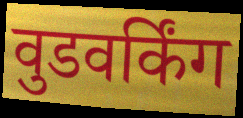
वुडवर्किंग